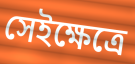
সেইক্ষেত্রে